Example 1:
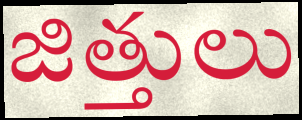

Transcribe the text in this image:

జిత్తులు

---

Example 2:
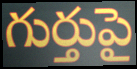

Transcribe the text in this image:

గుర్తుపై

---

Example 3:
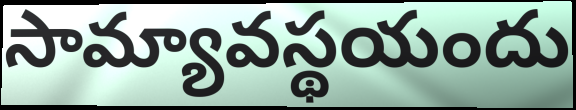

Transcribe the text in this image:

సామ్యావస్థయందు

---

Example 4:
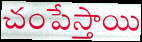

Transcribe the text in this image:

చంపేస్తాయి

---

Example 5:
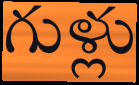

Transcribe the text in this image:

గుళ్లు